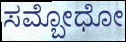
ಸಮ್ಬೋಧೋ